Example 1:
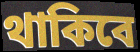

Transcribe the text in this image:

থাকিবে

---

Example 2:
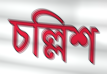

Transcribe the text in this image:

চল্লিশ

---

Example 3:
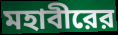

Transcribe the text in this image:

মহাবীরের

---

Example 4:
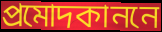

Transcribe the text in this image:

প্রমোদকাননে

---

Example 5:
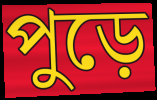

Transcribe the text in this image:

পুড়ে